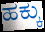
ಹಕ್ಕು